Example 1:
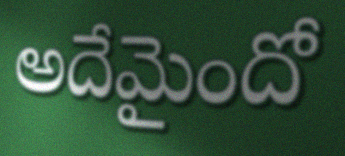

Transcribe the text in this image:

అదేమైందో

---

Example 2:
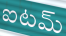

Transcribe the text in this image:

ఐటమ్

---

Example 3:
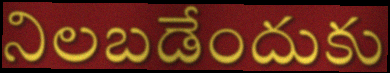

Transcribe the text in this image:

నిలబడేందుకు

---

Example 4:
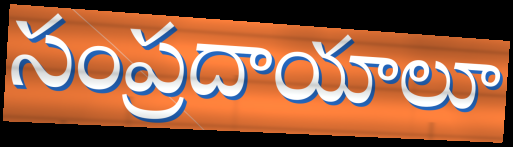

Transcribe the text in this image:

సంప్రదాయాలూ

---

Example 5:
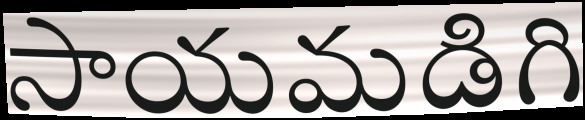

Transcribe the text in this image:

సాయమడిగి